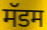
मॅडम